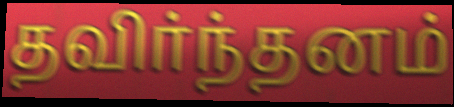
தவிர்ந்தனம்